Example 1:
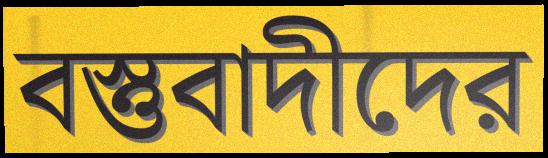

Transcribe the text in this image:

বস্তুবাদীদের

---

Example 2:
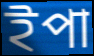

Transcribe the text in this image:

ইপা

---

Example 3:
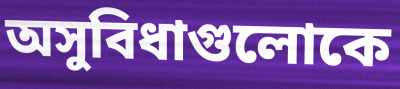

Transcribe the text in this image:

অসুবিধাগুলোকে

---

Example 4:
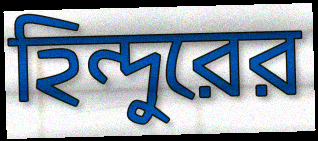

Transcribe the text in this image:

হিন্দুরের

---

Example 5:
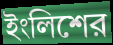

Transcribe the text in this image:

ইংলিশের